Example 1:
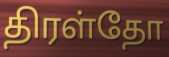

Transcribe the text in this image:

திரள்தோ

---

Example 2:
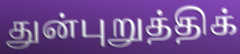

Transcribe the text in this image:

துன்புறுத்திக்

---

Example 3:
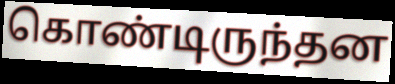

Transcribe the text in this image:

கொண்டிருந்தன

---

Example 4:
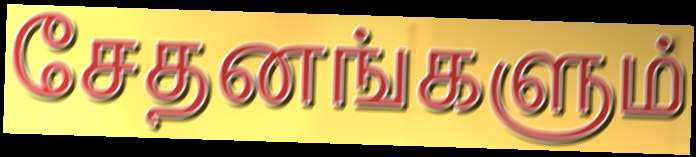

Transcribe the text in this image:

சேதனங்களும்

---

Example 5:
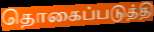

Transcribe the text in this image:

தொகைப்படுத்தி